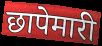
छापेमारी